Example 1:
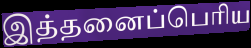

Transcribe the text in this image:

இத்தனைப்பெரிய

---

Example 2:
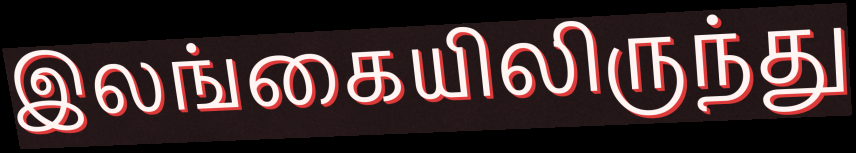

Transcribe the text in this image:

இலங்கையிலிருந்து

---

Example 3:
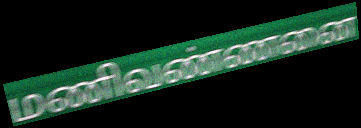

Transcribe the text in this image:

மணிவண்ணனை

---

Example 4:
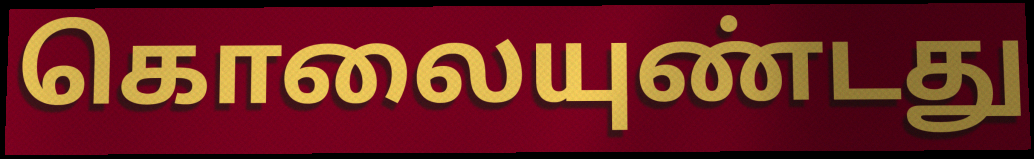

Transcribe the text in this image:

கொலையுண்டது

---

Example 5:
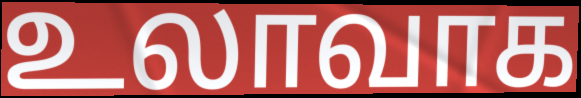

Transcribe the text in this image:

உலாவாக